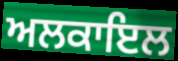
ਅਲਕਾਇਲ